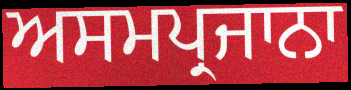
ਅਸਮਪ੍ਰਜਾਨਾ